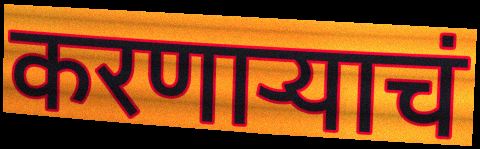
करणाऱ्याचं